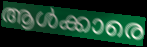
ആൾക്കാരെ